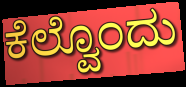
ಕೆಲ್ವೊಂದು